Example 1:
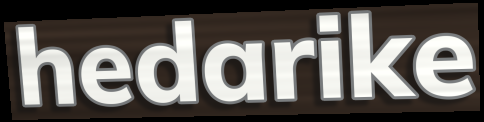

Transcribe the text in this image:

hedarike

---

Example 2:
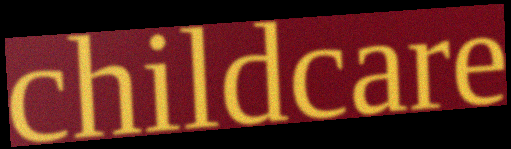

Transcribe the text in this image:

childcare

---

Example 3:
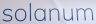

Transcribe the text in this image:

solanum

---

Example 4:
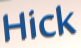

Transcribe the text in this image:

Hick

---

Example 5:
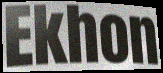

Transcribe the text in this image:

Ekhon